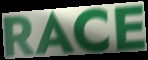
RACE